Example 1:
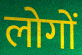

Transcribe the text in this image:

लोगों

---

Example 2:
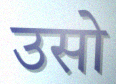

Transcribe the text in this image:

उसो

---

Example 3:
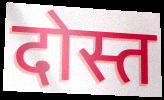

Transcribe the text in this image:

दोस्त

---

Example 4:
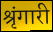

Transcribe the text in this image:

श्रृंगारी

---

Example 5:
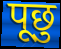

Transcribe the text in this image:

पूछु